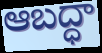
ఆబద్ధా